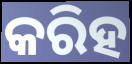
କରିହ